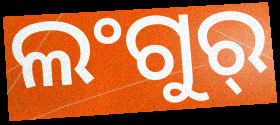
ଲଂଗୁର୍